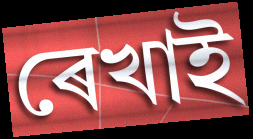
ৰেখাই